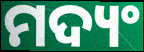
ମଦ୍ୟଂ